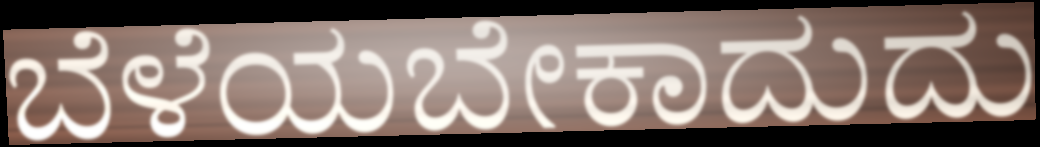
ಬೆಳೆಯಬೇಕಾದುದು